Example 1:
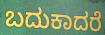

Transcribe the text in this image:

ಬದುಕಾದರೆ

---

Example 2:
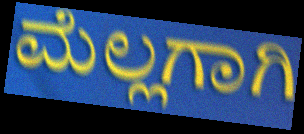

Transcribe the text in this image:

ಮೆಲ್ಲಗಾಗಿ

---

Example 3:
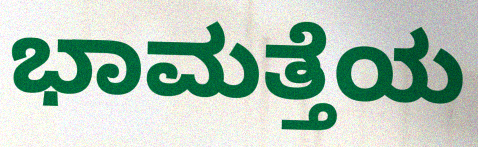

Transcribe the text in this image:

ಭಾಮತ್ತೆಯ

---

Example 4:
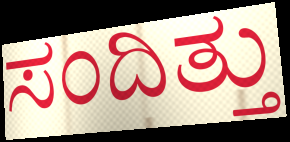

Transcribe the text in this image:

ಸಂದಿತ್ತು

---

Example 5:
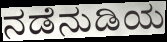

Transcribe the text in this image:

ನಡೆನುಡಿಯ